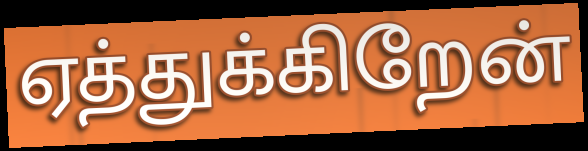
ஏத்துக்கிறேன்